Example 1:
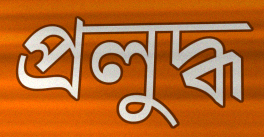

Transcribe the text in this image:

প্রলুদ্ধ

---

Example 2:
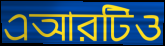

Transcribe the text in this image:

এআরটিও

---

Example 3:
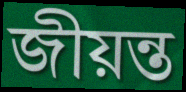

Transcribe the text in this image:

জীয়ন্ত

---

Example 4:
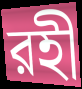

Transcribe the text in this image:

রহী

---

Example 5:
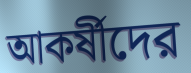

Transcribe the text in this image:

আকর্ষীদের